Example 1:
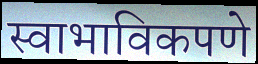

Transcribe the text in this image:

स्वाभाविकपणे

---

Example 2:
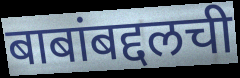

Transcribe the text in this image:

बाबांबद्दलची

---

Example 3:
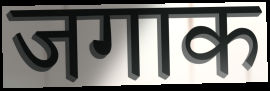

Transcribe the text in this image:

जगाक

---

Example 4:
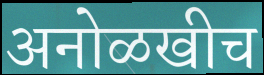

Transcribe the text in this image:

अनोळखीच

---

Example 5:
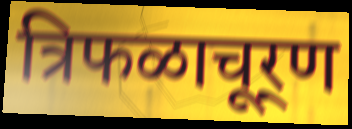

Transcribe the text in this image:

त्रिफळाचूर्ण